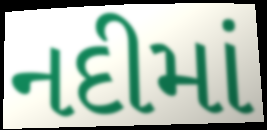
નદીમાં